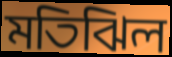
মতিঝিল